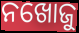
ନଖୋଜୁ